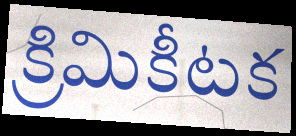
క్రిమికీటక